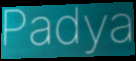
Padya